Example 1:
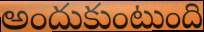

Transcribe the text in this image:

అందుకుంటుంది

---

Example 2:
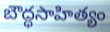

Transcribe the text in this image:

బౌద్ధసాహిత్యం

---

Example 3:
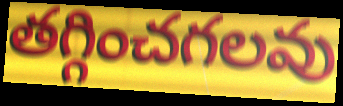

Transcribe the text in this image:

తగ్గించగలవు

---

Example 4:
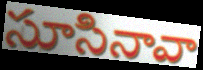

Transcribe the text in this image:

సూసినావా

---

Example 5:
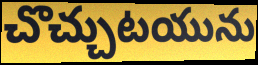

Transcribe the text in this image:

చొచ్చుటయును